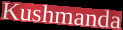
Kushmanda